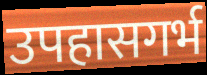
उपहासगर्भ